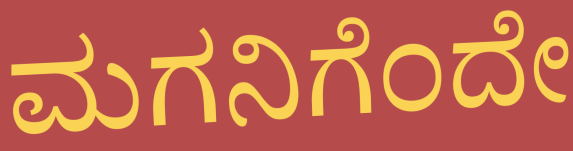
ಮಗನಿಗೆಂದೇ